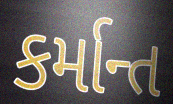
કર્માન્ત